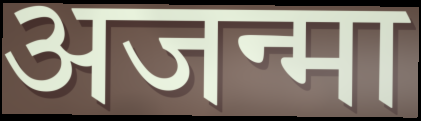
अजन्मा